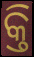
କ୍ତି